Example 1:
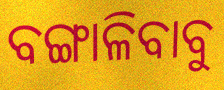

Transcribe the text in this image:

ବଙ୍ଗାଳିବାବୁ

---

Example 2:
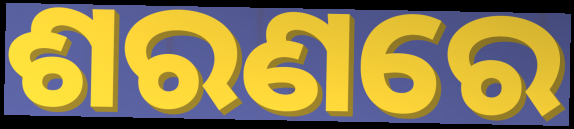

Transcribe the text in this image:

ଶରଣରେ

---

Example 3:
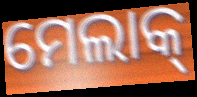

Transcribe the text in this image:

ମେଲାକ୍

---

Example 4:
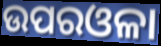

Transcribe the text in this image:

ଉପରଓଳା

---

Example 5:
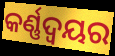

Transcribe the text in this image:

କର୍ଣ୍ଣଦ୍ୱୟର